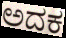
ಅದಕ